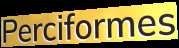
Perciformes